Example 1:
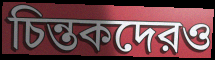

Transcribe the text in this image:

চিন্তকদেরও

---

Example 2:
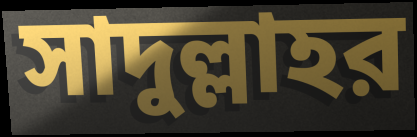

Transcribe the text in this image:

সাদুল্লাহর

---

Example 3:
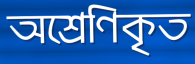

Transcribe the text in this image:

অশ্রেণিকৃত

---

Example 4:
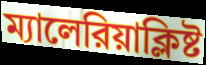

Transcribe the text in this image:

ম্যালেরিয়াক্লিষ্ট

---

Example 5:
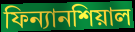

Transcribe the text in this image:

ফিন্যানশিয়াল